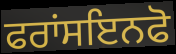
ਫਰਾਂਸਇਨਫੋ